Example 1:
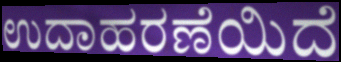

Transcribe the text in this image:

ಉದಾಹರಣೆಯಿದೆ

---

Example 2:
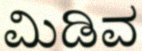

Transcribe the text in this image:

ಮಿಡಿವ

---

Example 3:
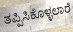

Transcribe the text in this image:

ತಪ್ಪಿಸಿಕೊಳ್ಳಲಾರೆ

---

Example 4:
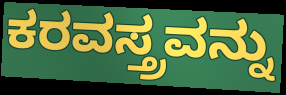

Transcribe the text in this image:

ಕರವಸ್ತ್ರವನ್ನು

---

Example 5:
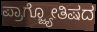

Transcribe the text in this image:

ಪ್ರಾಗ್ಜ್ಯೋತಿಷದ